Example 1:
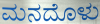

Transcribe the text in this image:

ಮನದೊಳು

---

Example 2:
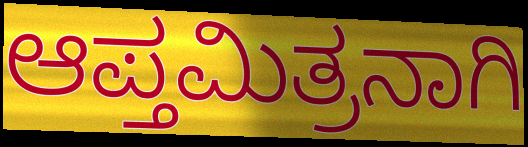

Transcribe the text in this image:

ಆಪ್ತಮಿತ್ರನಾಗಿ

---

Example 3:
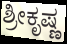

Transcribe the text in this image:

ಶ್ರೀಕೃಷ್ಣ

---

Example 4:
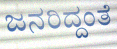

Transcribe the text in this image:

ಜನರಿದ್ದಂತೆ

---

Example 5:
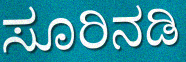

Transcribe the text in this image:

ಸೂರಿನಡಿ